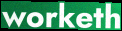
worketh